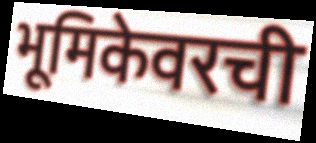
भूमिकेवरची